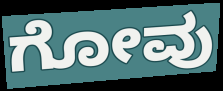
ಗೋವು